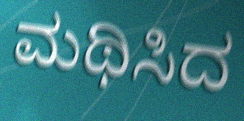
ಮಥಿಸಿದ